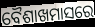
ବୈଶାଖମାସରେ